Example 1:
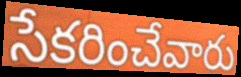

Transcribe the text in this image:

సేకరించేవారు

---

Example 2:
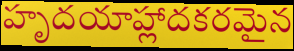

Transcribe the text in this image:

హృదయాహ్లాదకరమైన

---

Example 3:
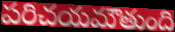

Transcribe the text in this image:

పరిచయమౌతుంది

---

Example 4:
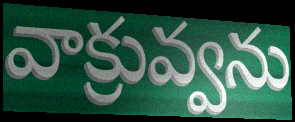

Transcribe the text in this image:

వాక్రువ్వను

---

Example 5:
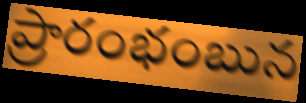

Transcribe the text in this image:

ప్రారంభంబున